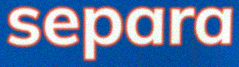
separa